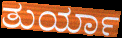
ತುರ್ಯಾ